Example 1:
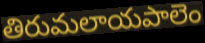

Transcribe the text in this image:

తిరుమలాయపాలెం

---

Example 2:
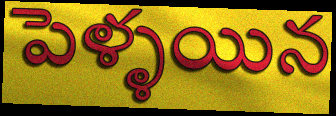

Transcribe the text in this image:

పెళ్ళయిన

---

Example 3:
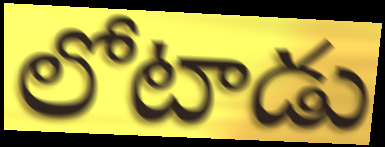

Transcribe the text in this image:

లోటాడు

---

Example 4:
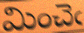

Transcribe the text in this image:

మించెఁ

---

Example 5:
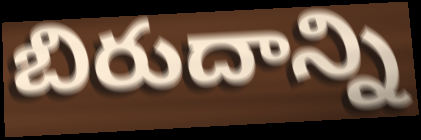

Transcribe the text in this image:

బిరుదాన్ని